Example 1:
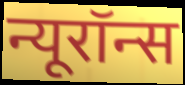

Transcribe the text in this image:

न्यूरॉन्स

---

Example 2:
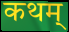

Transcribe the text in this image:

कथम्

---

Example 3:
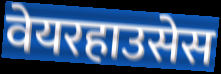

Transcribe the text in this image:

वेयरहाउसेस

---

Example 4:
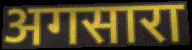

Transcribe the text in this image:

अगसारा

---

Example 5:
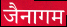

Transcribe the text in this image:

जैनागम